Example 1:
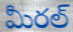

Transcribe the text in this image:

మీరల్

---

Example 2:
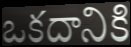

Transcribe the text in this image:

ఒకదానికి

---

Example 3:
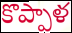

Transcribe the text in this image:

కొప్పాళ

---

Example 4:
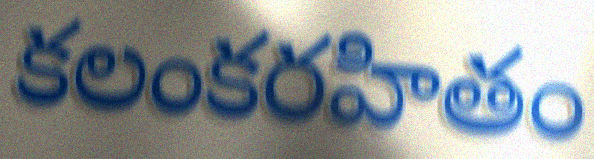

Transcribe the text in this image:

కలంకరహితం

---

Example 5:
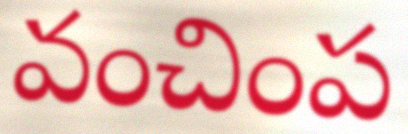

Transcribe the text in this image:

వంచింప